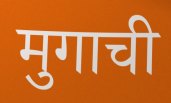
मुगाची